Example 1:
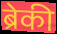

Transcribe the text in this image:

ब्रेकी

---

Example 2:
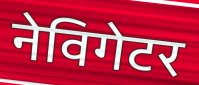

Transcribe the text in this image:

नेविगेटर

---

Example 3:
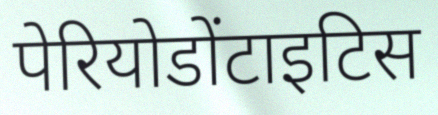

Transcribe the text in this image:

पेरियोडोंटाइटिस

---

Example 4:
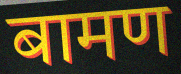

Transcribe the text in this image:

बामण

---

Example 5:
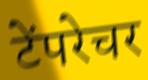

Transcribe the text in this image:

टेंपरेचर